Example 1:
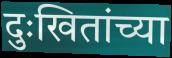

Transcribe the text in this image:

दुःखितांच्या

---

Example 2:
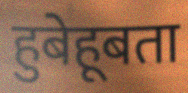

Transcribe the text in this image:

हुबेहूबता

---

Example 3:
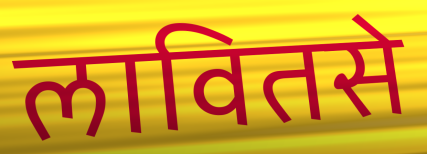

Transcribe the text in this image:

लावितसे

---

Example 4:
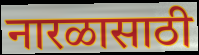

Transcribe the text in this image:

नारळासाठी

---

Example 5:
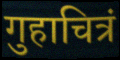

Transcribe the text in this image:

गुहाचित्रं